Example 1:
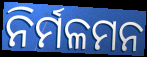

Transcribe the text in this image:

ନିର୍ମଳମନ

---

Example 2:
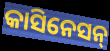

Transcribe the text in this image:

କାସିନେସନ୍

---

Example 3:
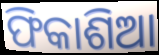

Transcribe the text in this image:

ଫିକାଶିଆ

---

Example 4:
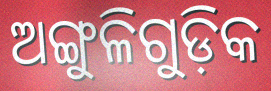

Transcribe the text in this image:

ଅଙ୍ଗୁଳିଗୁଡ଼ିକ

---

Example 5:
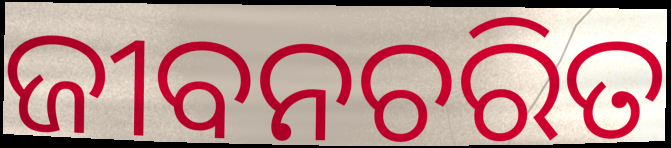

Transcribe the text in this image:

ଜୀବନଚରିତ